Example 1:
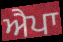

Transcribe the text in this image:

ਐਪਾ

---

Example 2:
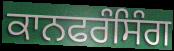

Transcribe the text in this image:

ਕਾਨਫਰੰਸਿੰਗ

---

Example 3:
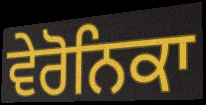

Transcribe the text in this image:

ਵੇਰੋਨਿਕਾ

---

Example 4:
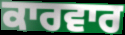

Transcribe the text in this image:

ਕਾਰਵਾਰ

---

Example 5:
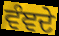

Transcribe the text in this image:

ਵੰਞਦੇ